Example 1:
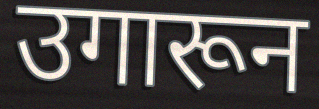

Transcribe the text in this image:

उगारून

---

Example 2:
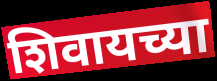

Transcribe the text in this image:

शिवायच्या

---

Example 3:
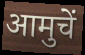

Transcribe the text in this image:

आमुचें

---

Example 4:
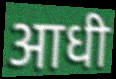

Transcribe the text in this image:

आधी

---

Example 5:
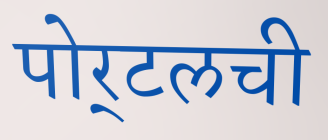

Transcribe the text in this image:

पोर्टलची